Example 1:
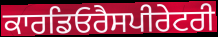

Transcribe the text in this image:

ਕਾਰਡਿਓਰੈਸਪੀਰੇਟਰੀ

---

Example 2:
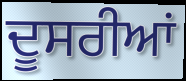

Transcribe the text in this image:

ਦੂਸਰੀਆਂ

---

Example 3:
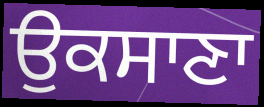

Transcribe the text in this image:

ਉਕਸਾਣਾ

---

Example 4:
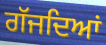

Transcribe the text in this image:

ਗੱਜਦਿਆਂ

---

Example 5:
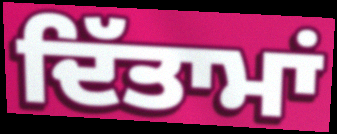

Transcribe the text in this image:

ਦਿੱਤਾਮਾਂ